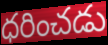
ధరించడు